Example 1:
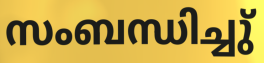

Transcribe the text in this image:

സംബന്ധിച്ചു്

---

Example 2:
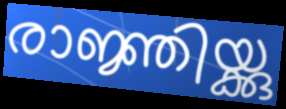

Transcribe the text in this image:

രാജ്ഞിയ്ക്കു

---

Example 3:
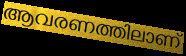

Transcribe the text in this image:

ആവരണത്തിലാണ്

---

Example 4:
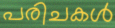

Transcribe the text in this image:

പരിചകൾ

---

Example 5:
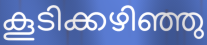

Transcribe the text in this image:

കൂടിക്കഴിഞ്ഞു